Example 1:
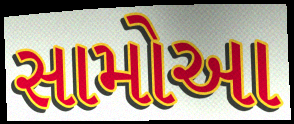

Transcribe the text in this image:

સામોઆ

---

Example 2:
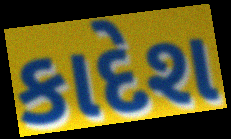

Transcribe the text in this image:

કાદેશ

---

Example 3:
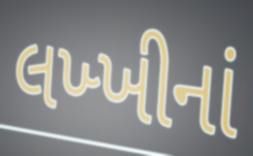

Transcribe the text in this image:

લખ્ખીનાં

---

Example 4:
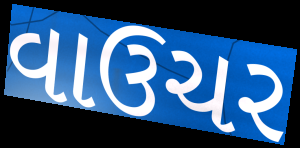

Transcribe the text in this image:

વાઉચર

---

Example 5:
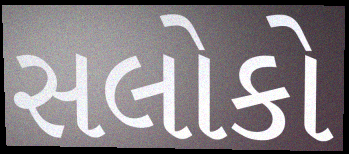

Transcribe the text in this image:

સલોકો